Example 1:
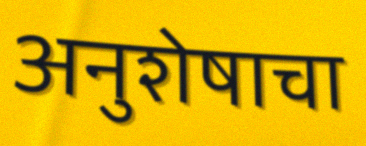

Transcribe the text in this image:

अनुशेषाचा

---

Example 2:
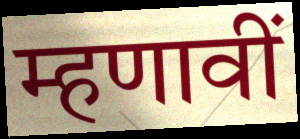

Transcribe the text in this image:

म्हणावीं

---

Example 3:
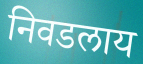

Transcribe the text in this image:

निवडलाय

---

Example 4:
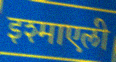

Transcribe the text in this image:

इश्माएली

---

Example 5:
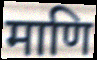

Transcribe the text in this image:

माणि